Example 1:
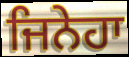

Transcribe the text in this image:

ਜਿਨੇਹਾ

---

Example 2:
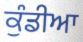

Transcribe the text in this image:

ਕੁੰਡੀਆ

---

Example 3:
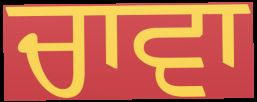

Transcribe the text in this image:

ਚਾਵਾ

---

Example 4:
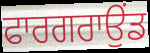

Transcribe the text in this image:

ਫਾਰਗਰਾਉਂਡ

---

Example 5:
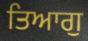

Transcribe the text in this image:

ਤਿਆਗੁ